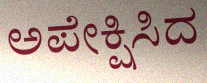
ಅಪೇಕ್ಷಿಸಿದ